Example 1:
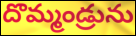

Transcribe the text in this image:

దొమ్మండ్రును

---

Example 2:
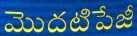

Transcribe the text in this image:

మొదటిపేజీ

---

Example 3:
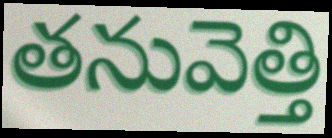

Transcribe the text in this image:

తనువెత్తి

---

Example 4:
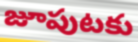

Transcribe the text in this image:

జూపుటకు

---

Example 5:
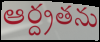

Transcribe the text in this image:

ఆర్ద్రతను